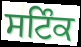
ਸਟਿੰਕ